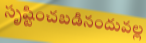
సృష్టించబడినందువల్ల